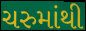
ચરુમાંથી